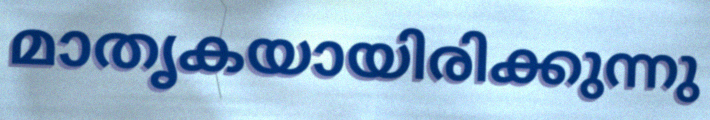
മാതൃകയായിരിക്കുന്നു